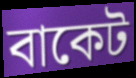
বাকেট